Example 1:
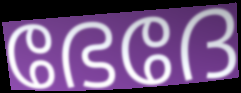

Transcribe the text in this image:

ഭേദേ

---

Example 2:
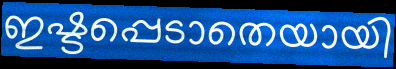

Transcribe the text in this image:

ഇഷ്ടപ്പെടാതെയായി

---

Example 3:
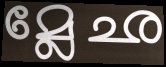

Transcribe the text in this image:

മ്ലേഛ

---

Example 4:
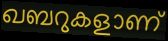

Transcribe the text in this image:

ഖബറുകളാണ്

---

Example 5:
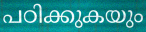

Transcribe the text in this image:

പഠിക്കുകയും